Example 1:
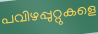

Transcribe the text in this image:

പവിഴപ്പുറ്റുകളെ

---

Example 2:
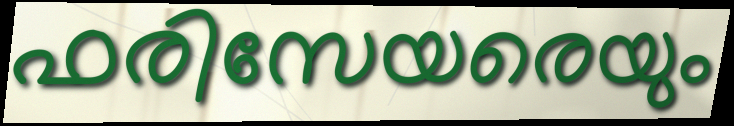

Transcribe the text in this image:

ഫരിസേയരെയും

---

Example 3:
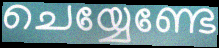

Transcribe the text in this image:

ചെയ്യേണ്ടേ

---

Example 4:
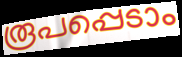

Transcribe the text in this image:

രൂപപ്പെടാം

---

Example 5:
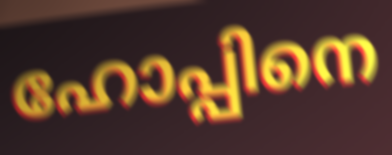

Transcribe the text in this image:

ഹോപ്പിനെ